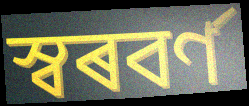
স্বৰবৰ্ণ